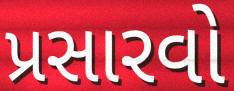
પ્રસારવો